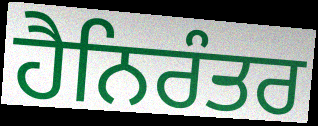
ਹੈਨਿਰੰਤਰ